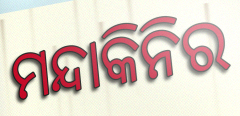
ମନ୍ଦାକିନିର